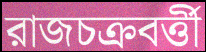
রাজচক্রবর্ত্তী